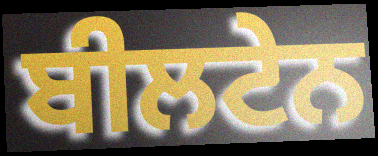
ਬੀਲਟੇਨ